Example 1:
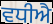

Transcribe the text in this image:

ਵਧੀਐ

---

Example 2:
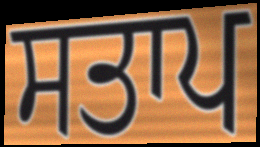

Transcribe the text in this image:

ਸਤਾਪ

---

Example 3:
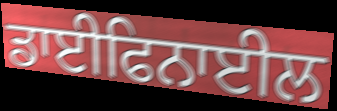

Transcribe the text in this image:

ਡਾਈਫਿਨਾਈਲ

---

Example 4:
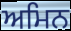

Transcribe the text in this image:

ਅਮਿਨ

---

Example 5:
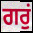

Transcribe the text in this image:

ਗਰੁਂ